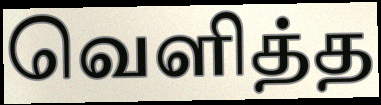
வெளித்த